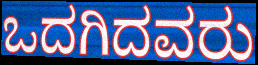
ಒದಗಿದವರು